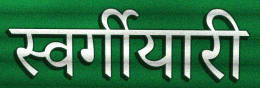
स्वर्गीयारी